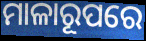
ମାଳାରୂପରେ